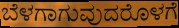
ಬೆಳಗಾಗುವುದರೊಳಗೆ